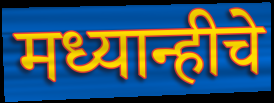
मध्यान्हीचे